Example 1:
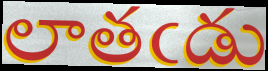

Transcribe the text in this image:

లాతఁడు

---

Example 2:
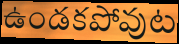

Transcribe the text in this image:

ఉండకపోవుట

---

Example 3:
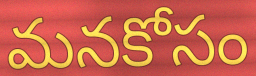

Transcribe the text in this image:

మనకోసం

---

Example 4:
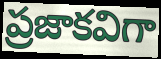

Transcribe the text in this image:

ప్రజాకవిగా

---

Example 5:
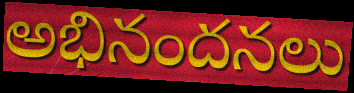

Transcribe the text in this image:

అభినందనలు